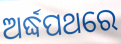
ଅର୍ଦ୍ଧପଥରେ